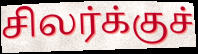
சிலர்க்குச்